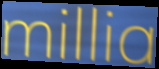
millia